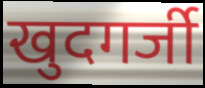
खुदगर्जी